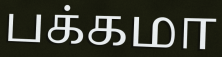
பக்கமா